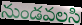
నుండవలసి